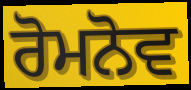
ਰੋਮਨੋਵ